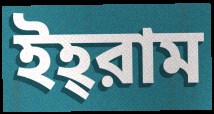
ইহ্‌রাম